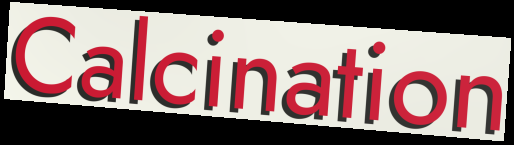
Calcination